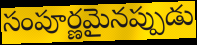
సంపూర్ణమైనప్పుడు